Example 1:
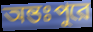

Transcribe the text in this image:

অন্তঃপুরে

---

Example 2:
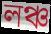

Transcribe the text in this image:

লঞ্চ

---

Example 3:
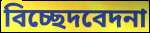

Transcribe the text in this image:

বিচ্ছেদবেদনা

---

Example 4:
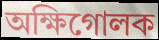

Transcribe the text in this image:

অক্ষিগোলক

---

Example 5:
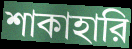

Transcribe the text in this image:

শাকাহারি